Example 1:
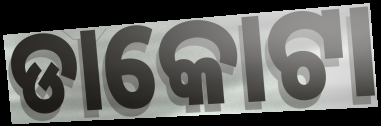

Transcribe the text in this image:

ଡାକୋଟା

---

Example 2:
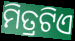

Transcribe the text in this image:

ମିତ୍ରଟିଏ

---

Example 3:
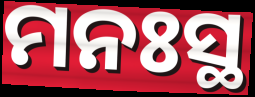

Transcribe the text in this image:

ମନଃସ୍ଥ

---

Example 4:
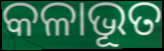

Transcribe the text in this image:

କଳାଭୂତ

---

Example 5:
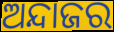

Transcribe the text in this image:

ଅନ୍ଦାଜର